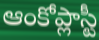
ఆంకోప్లాస్టీ